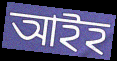
আইহ